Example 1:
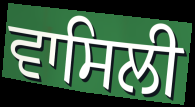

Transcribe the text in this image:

ਵਾਸਿਲੀ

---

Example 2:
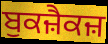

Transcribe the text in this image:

ਬੁਕਜ਼ੈਕਜ਼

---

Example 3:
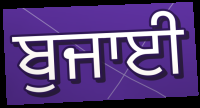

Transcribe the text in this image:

ਬੁਜਾਈ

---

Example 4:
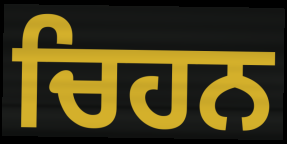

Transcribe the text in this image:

ਚਿਹਨ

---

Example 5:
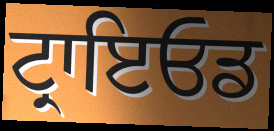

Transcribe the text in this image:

ਟ੍ਰਾਇਓਡ